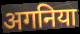
अगनिया